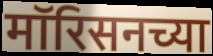
मॉरिसनच्या